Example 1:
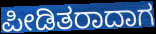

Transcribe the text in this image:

ಪೀಡಿತರಾದಾಗ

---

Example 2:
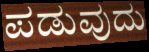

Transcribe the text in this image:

ಪಡುವುದು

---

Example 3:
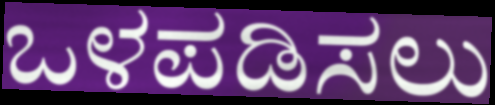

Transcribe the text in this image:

ಒಳಪಡಿಸಲು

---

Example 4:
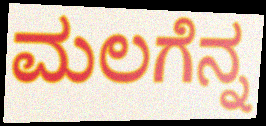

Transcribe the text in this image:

ಮಲಗೆನ್ನ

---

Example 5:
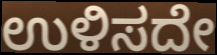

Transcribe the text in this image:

ಉಳಿಸದೇ